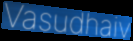
Vasudhaiv